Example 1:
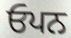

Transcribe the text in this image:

ਓਪਨ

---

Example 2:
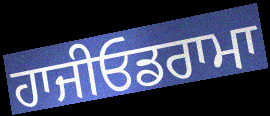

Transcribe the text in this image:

ਹਾਜੀਓਡਰਾਮਾ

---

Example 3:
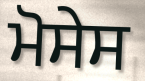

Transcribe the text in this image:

ਮੋਸੇਸ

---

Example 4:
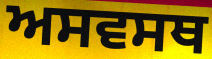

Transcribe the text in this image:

ਅਸਵਸਥ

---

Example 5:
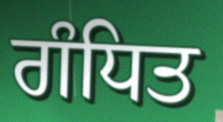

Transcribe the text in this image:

ਗੰਧਿਤ